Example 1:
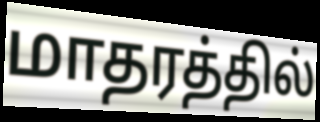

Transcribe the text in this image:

மாதரத்தில்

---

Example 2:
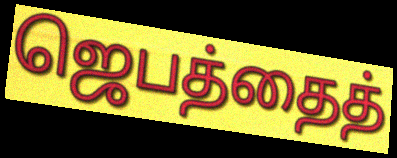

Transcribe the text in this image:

ஜெபத்தைத்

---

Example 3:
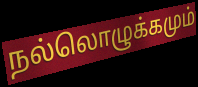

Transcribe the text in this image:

நல்லொழுக்கமும்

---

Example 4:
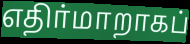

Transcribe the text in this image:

எதிர்மாறாகப்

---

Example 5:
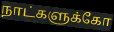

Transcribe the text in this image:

நாட்களுக்கோ